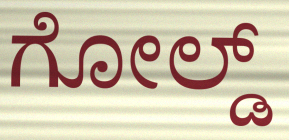
ಗೋಲ್ಡ್